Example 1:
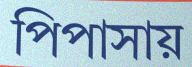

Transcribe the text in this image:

পিপাসায়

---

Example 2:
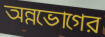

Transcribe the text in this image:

অন্নভোগের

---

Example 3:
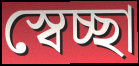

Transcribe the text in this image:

স্বেচ্ছা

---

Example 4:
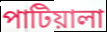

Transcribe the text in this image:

পাটিয়ালা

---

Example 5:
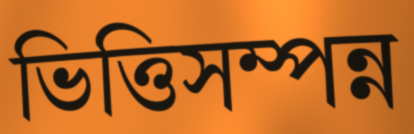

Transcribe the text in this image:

ভিত্তিসম্পন্ন